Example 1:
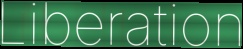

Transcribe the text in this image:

Liberation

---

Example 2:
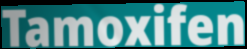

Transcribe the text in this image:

Tamoxifen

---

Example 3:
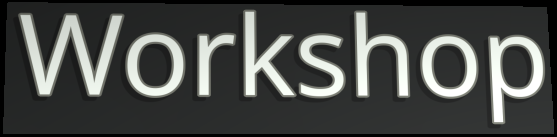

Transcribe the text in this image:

Workshop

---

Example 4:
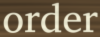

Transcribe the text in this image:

order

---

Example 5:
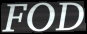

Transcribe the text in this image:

FOD